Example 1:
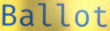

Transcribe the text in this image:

Ballot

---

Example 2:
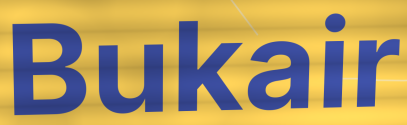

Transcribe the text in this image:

Bukair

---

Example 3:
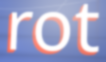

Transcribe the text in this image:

rot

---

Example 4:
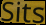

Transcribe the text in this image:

Sits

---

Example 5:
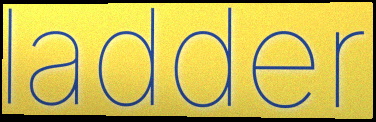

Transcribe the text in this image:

ladder